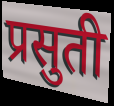
प्रसुती